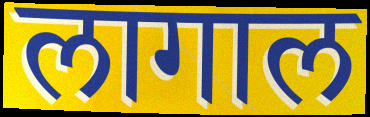
लागाल